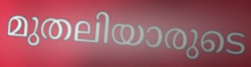
മുതലിയാരുടെ